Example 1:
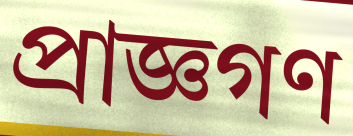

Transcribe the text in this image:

প্রাজ্ঞগণ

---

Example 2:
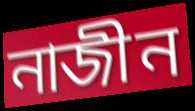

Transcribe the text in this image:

নাজীন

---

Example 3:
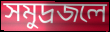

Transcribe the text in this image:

সমুদ্রজলে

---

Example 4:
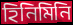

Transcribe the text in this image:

হিনিমিনি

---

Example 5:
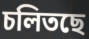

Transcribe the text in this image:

চলিতছে